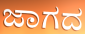
ಜಾಗದ